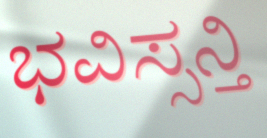
ಭವಿಸ್ಸನ್ತಿ